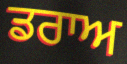
ਡਰਾਅ